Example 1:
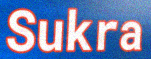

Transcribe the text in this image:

Sukra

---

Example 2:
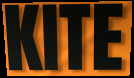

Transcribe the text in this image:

KITE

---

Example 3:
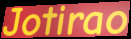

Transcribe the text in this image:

Jotirao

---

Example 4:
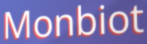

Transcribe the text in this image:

Monbiot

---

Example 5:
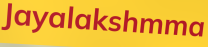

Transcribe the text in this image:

Jayalakshmma